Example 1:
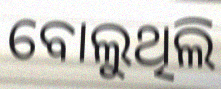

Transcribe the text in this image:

ବୋଲୁଥିଲି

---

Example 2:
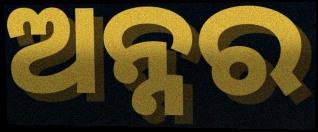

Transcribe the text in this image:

ଅନ୍ନର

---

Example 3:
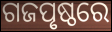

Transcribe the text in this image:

ଗଜପୃଷ୍ଠରେ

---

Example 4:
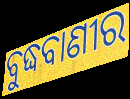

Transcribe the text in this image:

ବୁଦ୍ଧବାଣୀର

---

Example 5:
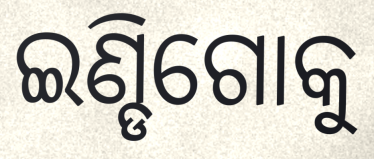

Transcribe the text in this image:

ଇଣ୍ଡିଗୋକୁ